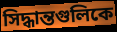
সিদ্ধান্তগুলিকে